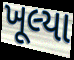
ખૂલ્યા